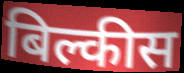
बिल्कीस